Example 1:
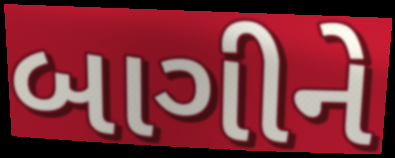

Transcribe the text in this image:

બાગીને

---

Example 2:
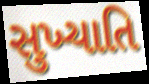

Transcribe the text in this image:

સુખ્યાતિ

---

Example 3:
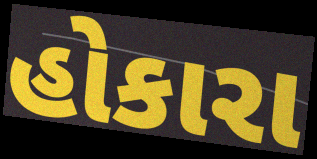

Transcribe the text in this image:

હોકારા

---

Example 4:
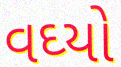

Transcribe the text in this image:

વઘ્યો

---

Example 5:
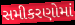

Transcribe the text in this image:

સમીકરણોમાં